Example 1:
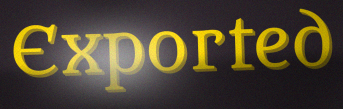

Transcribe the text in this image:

Exported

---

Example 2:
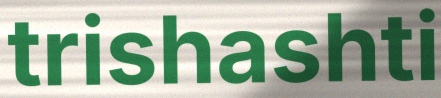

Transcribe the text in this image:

trishashti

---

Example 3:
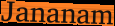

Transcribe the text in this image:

Jananam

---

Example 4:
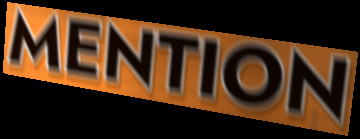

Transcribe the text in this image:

MENTION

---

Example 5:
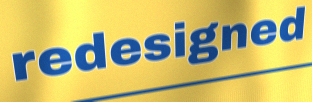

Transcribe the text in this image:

redesigned